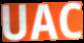
UAC